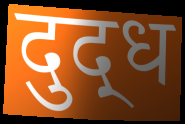
दुद्ध